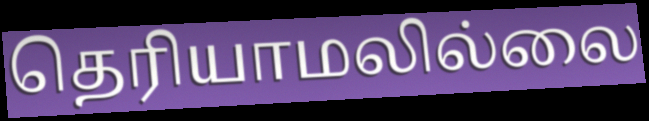
தெரியாமலில்லை